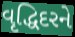
વૃદ્ધિદરને